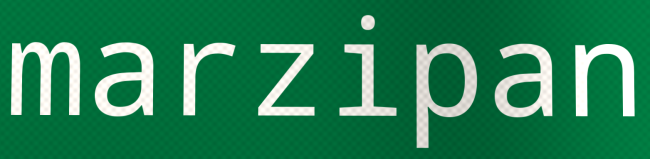
marzipan